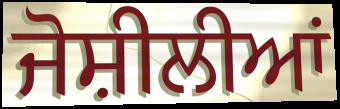
ਜੋਸ਼ੀਲੀਆਂ